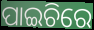
ପାଇଚିରେ